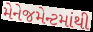
મેનેજમેન્ટમાંથી